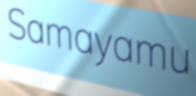
Samayamu